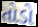
તોડો